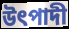
উৎপাদী